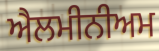
ਐਲਮੀਨੀਅਮ